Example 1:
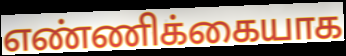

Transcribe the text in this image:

எண்ணிக்கையாக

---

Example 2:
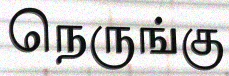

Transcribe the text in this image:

நெருங்கு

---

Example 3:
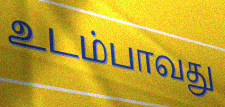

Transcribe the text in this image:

உடம்பாவது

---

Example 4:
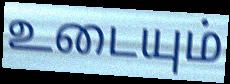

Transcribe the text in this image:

உடையும்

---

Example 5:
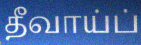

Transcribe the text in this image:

தீவாய்ப்